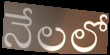
నేలలో